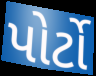
પોર્ટો